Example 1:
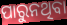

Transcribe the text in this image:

ପାରୁନଥିବା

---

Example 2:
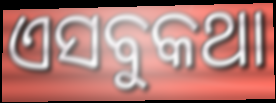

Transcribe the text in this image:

ଏସବୁକଥା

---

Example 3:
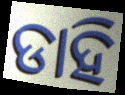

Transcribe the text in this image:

ଡାହି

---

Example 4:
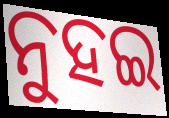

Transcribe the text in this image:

ନୁହଇ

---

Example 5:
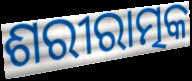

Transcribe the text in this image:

ଶରୀରାତ୍ମକ